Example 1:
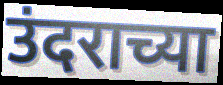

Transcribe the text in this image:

उंदराच्या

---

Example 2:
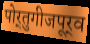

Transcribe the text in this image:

पोर्तुगीजपूर्व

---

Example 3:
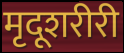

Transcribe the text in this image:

मृदूशरीरी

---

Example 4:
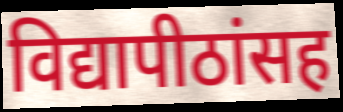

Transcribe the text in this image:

विद्यापीठांसह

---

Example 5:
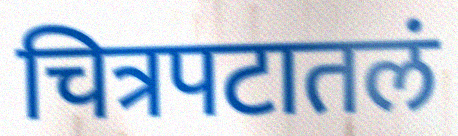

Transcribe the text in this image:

चित्रपटातलं